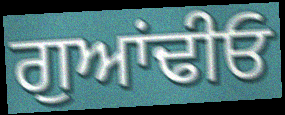
ਗੁਆਂਢੀਓ